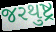
જરથુષ્ટ્ર